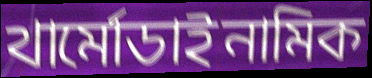
থার্মোডাইনামিক